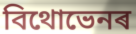
বিথোভেনৰ